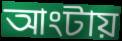
আংটায়